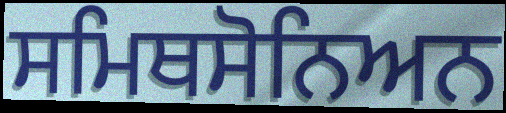
ਸਮਿਥਸੋਨਿਅਨ